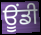
ਊਂਡੀ